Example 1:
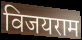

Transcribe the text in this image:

विजयराम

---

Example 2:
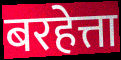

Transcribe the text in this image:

बरहेत्ता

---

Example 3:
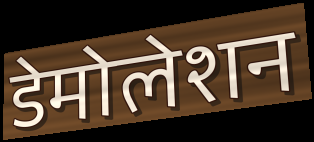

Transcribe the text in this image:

डेमोलेशन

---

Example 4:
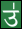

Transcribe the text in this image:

उ॑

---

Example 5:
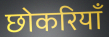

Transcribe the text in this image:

छोकरियाँ